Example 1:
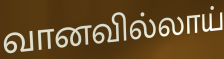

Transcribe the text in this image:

வானவில்லாய்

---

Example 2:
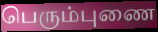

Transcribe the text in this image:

பெரும்புணை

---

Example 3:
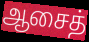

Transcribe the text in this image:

ஆசைத்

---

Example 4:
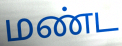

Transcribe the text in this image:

மண்ட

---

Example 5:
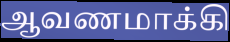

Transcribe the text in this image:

ஆவணமாக்கி